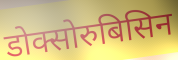
डोक्सोरुबिसिन